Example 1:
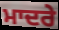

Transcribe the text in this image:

ਮਾਦਰੇ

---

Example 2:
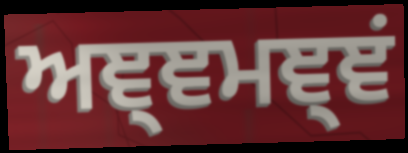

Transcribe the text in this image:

ਅਞ੍ਞਮਞ੍ਞਂ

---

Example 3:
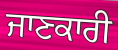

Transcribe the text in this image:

ਜਾਣਕਾਰੀ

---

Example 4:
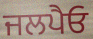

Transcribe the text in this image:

ਜਲਪੈਓ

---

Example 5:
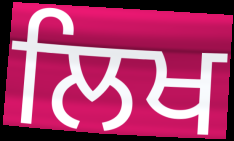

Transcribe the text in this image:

ਲਿਖ